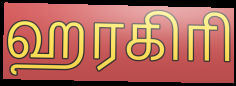
ஹரகிரி